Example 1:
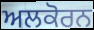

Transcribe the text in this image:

ਅਲਕੋਰਨ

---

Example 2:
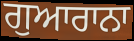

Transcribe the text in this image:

ਗੁਆਰਾਨਾ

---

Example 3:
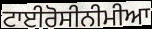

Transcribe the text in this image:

ਟਾਈਰੋਸੀਨੀਮੀਆ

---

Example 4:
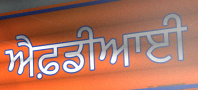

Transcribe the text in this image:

ਐਫ਼ਡੀਆਈ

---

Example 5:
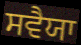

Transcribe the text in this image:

ਸਵੈਯਾ